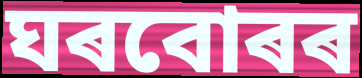
ঘৰবোৰৰ